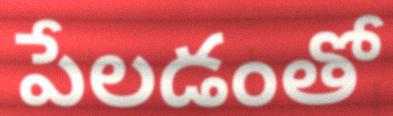
పేలడంతో